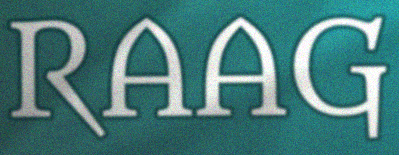
RAAG